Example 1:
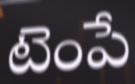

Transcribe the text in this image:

టెంపే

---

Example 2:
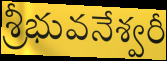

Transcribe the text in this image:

శ్రీభువనేశ్వరీ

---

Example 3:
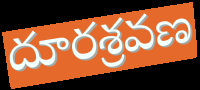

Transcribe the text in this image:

దూరశ్రవణ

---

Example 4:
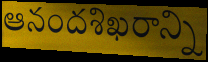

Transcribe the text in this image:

ఆనందశిఖరాన్ని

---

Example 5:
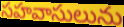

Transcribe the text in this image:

సహవాసులును